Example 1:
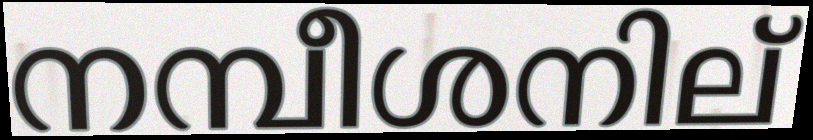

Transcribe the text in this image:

നമ്പീശനില്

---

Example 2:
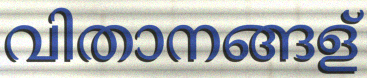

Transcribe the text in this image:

വിതാനങ്ങള്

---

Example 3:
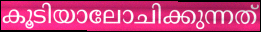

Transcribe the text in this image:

കൂടിയാലോചിക്കുന്നത്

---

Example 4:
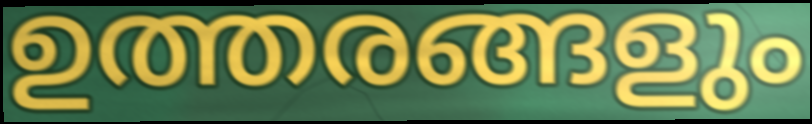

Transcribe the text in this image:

ഉത്തരങ്ങളും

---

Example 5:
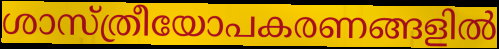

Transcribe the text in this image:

ശാസ്ത്രീയോപകരണങ്ങളിൽ